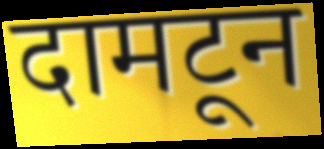
दामटून